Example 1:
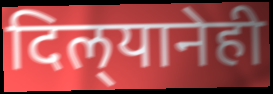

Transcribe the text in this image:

दिल्यानेही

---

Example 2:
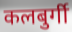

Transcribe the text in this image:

कलबुर्गी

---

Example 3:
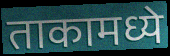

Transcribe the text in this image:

ताकामध्ये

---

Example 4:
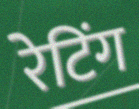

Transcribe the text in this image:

रेटिंग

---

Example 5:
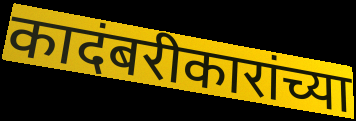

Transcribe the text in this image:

कादंबरीकारांच्या